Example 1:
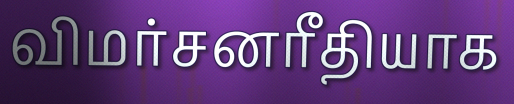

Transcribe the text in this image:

விமர்சனரீதியாக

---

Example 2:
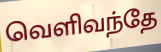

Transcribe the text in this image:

வெளிவந்தே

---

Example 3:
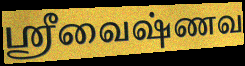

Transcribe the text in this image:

ஸ்ரீவைஷ்ணவ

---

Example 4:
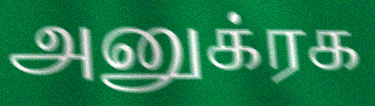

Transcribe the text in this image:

அனுக்ரக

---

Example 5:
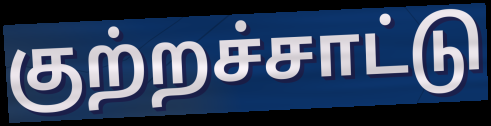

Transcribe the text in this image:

குற்றச்சாட்டு